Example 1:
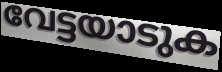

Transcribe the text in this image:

വേട്ടയാടുക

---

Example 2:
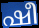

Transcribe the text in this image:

ഷീ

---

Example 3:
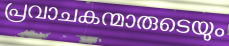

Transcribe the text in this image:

പ്രവാചകന്മാരുടെയും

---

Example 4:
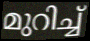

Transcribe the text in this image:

മുറിച്ച്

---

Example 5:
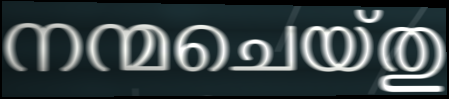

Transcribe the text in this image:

നന്മചെയ്തു